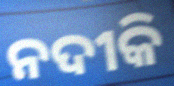
ନଦୀକି